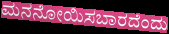
ಮನನೋಯಿಸಬಾರದೆಂದು